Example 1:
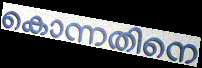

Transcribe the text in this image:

കൊന്നതിനെ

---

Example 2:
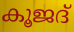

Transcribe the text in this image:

കൂജദ്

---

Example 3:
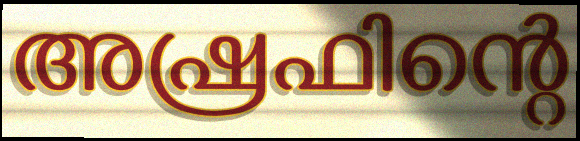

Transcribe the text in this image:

അഷ്രഫിന്റെ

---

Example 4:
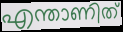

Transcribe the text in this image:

എന്താണിത്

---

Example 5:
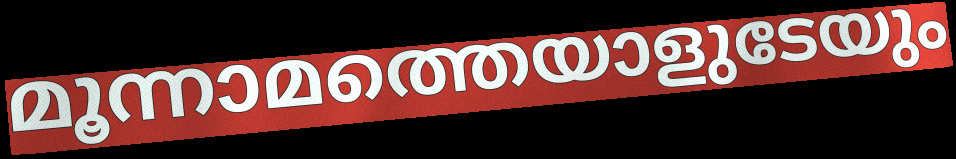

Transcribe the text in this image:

മൂന്നാമത്തെയാളുടേയും